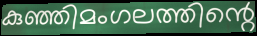
കുഞ്ഞിമംഗലത്തിന്റെ